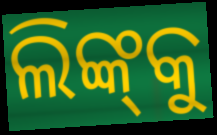
ଲିଙ୍କ୍‌କୁ